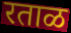
रताळ